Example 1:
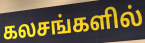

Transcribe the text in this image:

கலசங்களில்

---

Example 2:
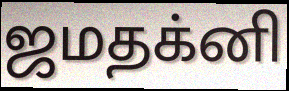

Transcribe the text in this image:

ஜமதக்னி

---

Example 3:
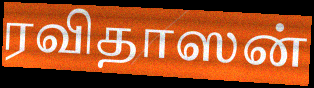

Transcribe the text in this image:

ரவிதாஸன்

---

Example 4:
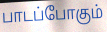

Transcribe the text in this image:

பாடப்போகும்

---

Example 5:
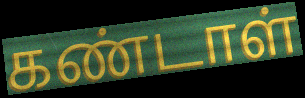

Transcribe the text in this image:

கண்டாள்